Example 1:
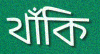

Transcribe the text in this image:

থাঁকি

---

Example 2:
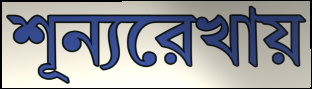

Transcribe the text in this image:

শূন্যরেখায়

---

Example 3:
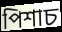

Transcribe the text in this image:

পিশাচ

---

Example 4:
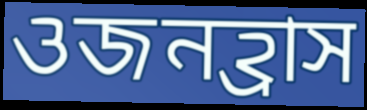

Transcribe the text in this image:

ওজনহ্রাস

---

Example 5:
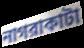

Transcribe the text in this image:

নাগরাকাটা